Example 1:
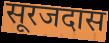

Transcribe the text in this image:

सूरजदास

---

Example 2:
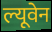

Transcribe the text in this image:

ल्यूवेन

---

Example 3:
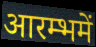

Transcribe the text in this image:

आरम्भमें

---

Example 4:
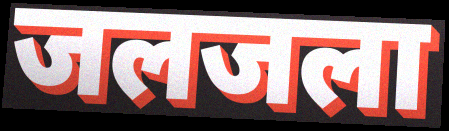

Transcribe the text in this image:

जलजला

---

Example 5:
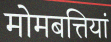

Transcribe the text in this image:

मोमबत्तियां